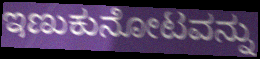
ಇಣುಕುನೋಟವನ್ನು